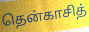
தென்காசித்